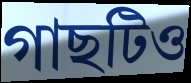
গাছটিও